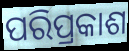
ପରିପ୍ରକାଶ